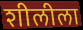
शीलीला